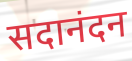
सदानंदन